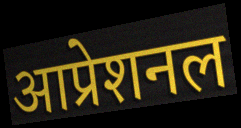
आप्रेशनल